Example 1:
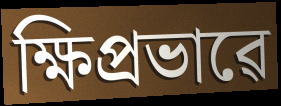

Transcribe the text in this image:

ক্ষিপ্ৰভাৱে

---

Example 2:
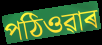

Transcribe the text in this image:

পঠিওৱাৰ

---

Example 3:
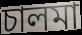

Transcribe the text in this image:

চালমা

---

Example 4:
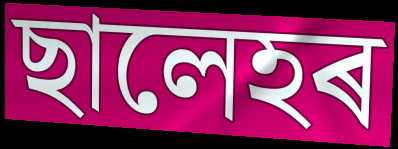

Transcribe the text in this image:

ছালেহৰ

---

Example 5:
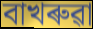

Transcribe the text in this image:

বাখৰুৱা